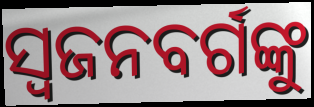
ସ୍ଵଜନବର୍ଗଙ୍କୁ